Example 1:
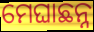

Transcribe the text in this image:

ମେଘାଛନ୍ନ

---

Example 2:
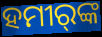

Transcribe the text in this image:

ହମୀର୍‍ଙ୍କ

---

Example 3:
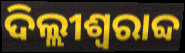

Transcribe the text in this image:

ଦିଲ୍ଲୀଶ୍ୱରାବ୍ଦ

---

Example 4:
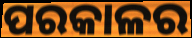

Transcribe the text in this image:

ପରକାଳର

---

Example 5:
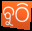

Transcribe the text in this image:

ବୁଠି